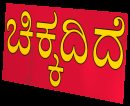
ಚಿಕ್ಕದಿದೆ